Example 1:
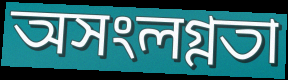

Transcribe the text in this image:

অসংলগ্নতা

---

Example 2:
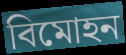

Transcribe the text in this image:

বিমোহন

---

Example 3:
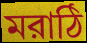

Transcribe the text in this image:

মরাঠি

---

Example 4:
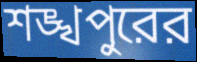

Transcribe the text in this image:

শঙ্খপুরের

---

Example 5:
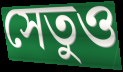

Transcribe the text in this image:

সেতুও